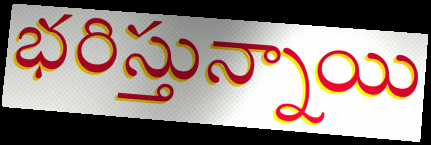
భరిస్తున్నాయి